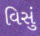
વિસું